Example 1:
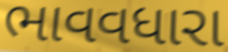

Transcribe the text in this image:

ભાવવધારા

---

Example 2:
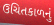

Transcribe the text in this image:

ઉચિતકાળનું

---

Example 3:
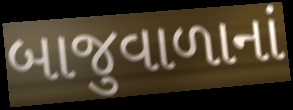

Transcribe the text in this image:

બાજુવાળાનાં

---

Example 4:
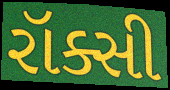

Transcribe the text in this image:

રૉક્સી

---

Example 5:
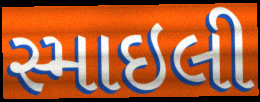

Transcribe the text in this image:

સ્માઇલી